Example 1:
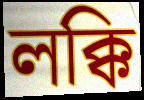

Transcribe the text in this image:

লক্কি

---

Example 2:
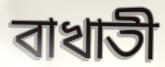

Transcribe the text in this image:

বাখাতী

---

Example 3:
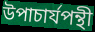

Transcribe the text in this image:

উপাচার্যপন্থী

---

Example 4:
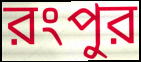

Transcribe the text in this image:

রংপুর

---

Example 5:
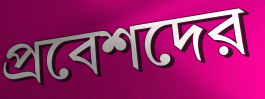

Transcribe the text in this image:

প্রবেশদের